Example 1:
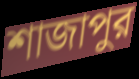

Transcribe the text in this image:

শাজাপুর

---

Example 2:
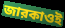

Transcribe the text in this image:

জারকাওই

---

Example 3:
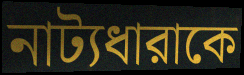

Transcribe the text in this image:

নাট্যধারাকে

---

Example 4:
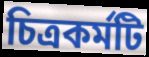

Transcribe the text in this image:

চিত্রকর্মটি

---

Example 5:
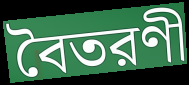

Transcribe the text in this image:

বৈতরণী